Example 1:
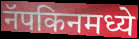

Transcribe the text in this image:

नॅपकिनमध्ये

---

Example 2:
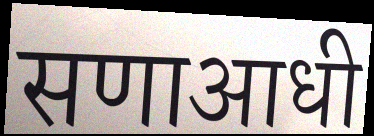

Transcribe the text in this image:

सणाआधी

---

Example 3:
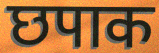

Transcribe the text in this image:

छपाक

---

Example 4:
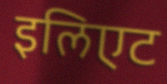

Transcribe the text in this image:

इलिएट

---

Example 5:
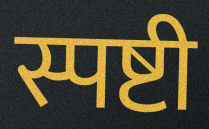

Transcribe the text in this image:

स्पष्टी